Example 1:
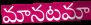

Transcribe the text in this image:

మానటమా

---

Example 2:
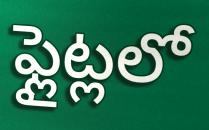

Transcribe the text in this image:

ఫ్లైట్లలో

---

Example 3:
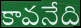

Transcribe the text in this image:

కావనేది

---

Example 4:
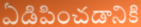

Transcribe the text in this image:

ఏడిపించడానికి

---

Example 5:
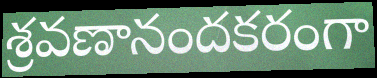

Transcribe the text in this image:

శ్రవణానందకరంగా